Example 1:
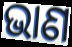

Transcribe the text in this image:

ଭାଣ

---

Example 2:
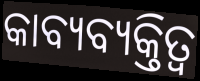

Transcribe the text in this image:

କାବ୍ୟବ୍ୟକ୍ତିତ୍ୱ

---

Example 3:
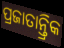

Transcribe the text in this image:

ପ୍ରଜାତାନ୍ତ୍ରିକ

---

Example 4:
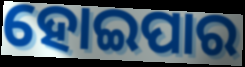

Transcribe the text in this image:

ହୋଇପାର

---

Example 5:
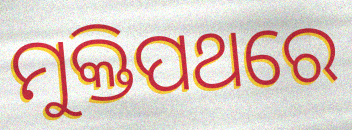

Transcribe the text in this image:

ମୁକ୍ତିପଥରେ